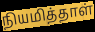
நியமித்தாள்